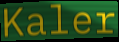
Kaler